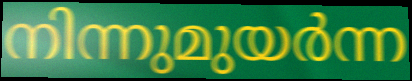
നിന്നുമുയർന്ന